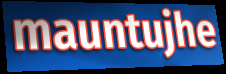
mauntujhe